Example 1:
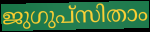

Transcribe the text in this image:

ജുഗുപ്സിതാം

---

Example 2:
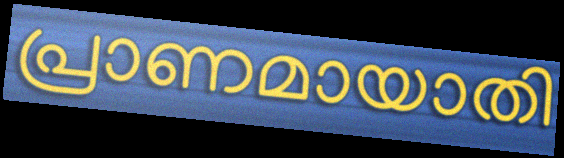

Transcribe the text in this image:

പ്രാണമായാതി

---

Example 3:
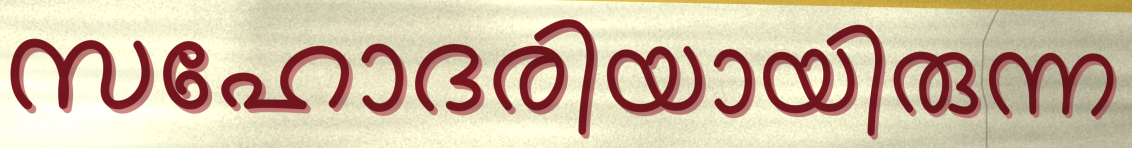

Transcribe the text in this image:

സഹോദരിയായിരുന്ന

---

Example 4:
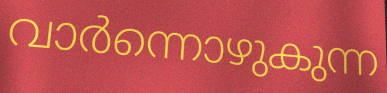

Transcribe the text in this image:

വാർന്നൊഴുകുന്ന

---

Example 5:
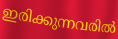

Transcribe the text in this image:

ഇരിക്കുന്നവരിൽ